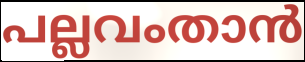
പല്ലവംതാൻ